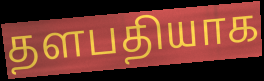
தளபதியாக